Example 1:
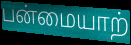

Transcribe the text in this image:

பன்மையாற்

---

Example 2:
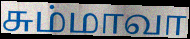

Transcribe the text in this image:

சும்மாவா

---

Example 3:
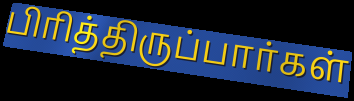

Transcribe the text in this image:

பிரித்திருப்பார்கள்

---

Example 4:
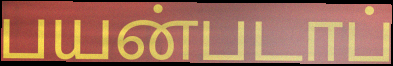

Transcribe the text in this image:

பயன்படாப்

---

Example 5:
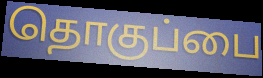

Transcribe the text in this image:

தொகுப்பை